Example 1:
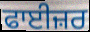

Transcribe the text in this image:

ਫਾਈਜ਼ਰ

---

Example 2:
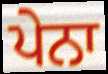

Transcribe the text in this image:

ਪੇਨਾ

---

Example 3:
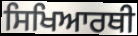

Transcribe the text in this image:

ਸਿਖਿਆਰਥੀ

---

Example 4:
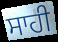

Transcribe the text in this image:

ਸਾਹੀ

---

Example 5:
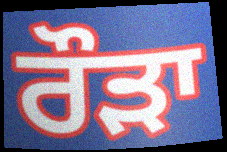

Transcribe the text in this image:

ਰੌੜਾ